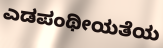
ಎಡಪಂಥೀಯತೆಯ